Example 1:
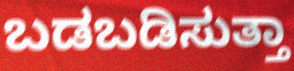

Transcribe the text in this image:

ಬಡಬಡಿಸುತ್ತಾ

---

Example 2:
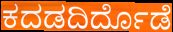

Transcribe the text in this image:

ಕದಡದಿರ್ದೊಡೆ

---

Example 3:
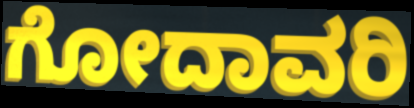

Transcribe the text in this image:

ಗೋದಾವರಿ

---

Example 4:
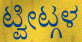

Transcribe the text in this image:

ಟ್ವೀಟ್ಗಳ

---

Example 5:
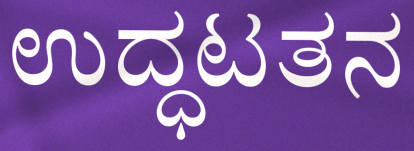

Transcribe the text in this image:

ಉದ್ಧಟತನ